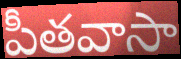
పీతవాసా